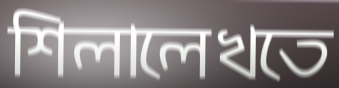
শিলালেখতে